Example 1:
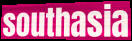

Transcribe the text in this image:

southasia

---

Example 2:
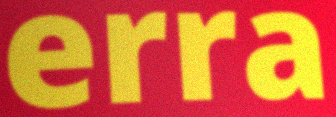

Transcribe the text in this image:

erra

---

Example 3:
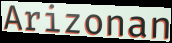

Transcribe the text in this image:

Arizonan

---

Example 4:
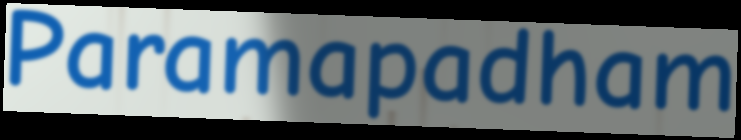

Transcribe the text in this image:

Paramapadham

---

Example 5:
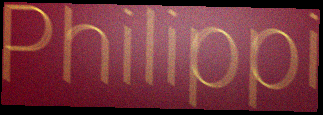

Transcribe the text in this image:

Philippi